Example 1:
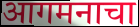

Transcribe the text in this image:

आगमनाचा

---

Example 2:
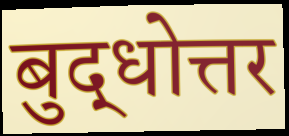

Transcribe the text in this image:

बुद्धोत्तर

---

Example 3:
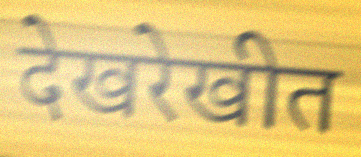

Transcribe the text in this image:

देखरेखीत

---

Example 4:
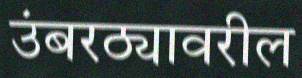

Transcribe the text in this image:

उंबरठ्यावरील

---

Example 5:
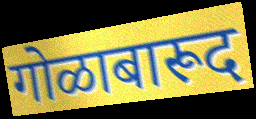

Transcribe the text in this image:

गोळाबारूद